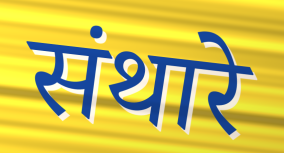
संथारे